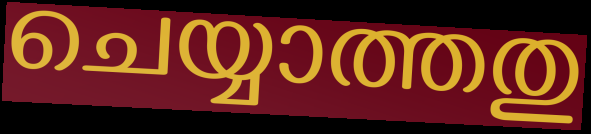
ചെയ്യാത്തതു